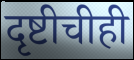
दृष्टीचीही